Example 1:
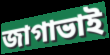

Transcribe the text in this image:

জাগাভাই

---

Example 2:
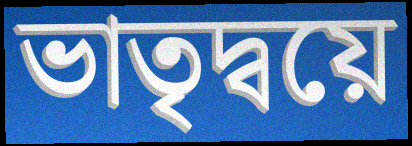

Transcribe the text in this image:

ভাতৃদ্বয়ে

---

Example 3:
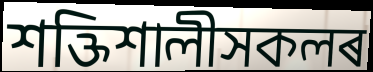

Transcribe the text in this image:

শক্তিশালীসকলৰ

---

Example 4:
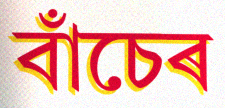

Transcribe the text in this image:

বাঁচেৰ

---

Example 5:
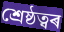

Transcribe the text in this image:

শ্ৰেষ্ঠত্বৰ